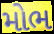
મોભ